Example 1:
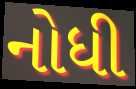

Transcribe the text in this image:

નોધી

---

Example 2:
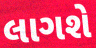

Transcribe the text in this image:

લાગશે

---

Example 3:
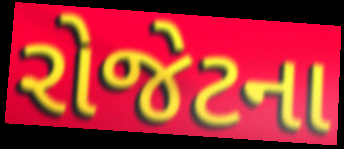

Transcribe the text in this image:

રોજેટના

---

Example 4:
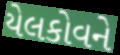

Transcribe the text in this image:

યેલકોવને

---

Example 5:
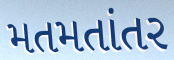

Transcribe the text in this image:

મતમતાંતર